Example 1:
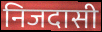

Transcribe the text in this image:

निजदासी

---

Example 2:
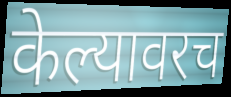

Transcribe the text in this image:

केल्यावरच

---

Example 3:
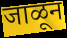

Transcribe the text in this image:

जाळून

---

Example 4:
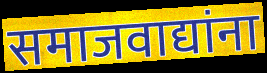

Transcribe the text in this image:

समाजवाद्यांना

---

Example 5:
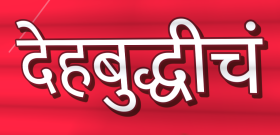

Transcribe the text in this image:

देहबुद्धीचं